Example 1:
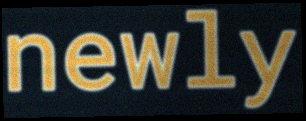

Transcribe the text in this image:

newly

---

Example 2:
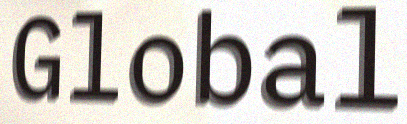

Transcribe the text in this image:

Global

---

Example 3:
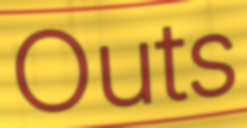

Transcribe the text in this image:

Outs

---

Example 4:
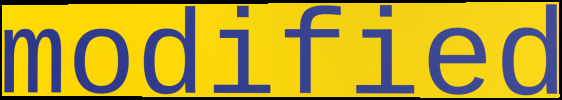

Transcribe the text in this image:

modified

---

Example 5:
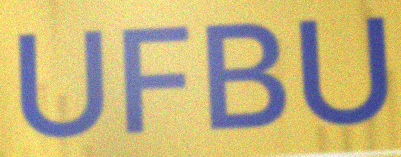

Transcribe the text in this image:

UFBU